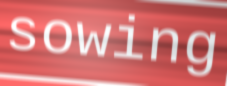
sowing